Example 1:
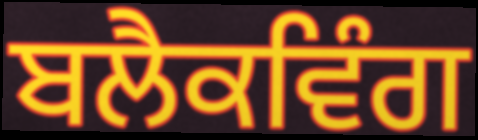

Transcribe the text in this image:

ਬਲੈਕਵਿੰਗ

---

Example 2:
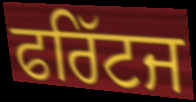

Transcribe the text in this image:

ਫਰਿੱਟਜ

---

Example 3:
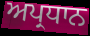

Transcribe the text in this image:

ਅਪ੍ਰਧਾਨ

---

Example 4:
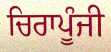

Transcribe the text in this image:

ਚਿਰਾਪੂੰਜੀ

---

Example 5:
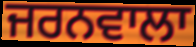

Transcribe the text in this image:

ਜਰਨਵਾਲਾ